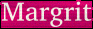
Margrit